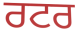
ਰਟਰ